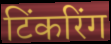
टिंकरिंग